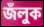
জঁলুক